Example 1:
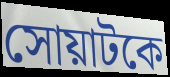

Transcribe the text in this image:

সোয়াটকে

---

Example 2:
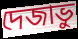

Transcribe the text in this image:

দেজাভু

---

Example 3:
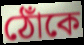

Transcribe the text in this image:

ঠোঁকে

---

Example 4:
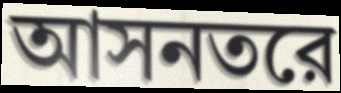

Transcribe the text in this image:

আসনতরে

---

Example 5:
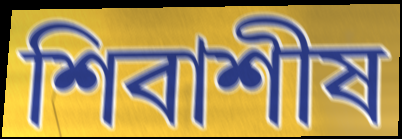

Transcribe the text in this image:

শিবাশীষ